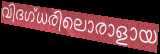
വിദഗ്ധരിലൊരാളായ